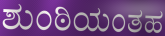
ಶುಂಠಿಯಂತಹ